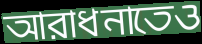
আরাধনাতেও